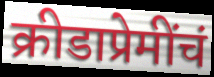
क्रीडाप्रेमींचं